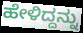
ಹೇಳಿದ್ದನ್ನು